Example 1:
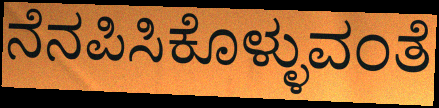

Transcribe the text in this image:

ನೆನಪಿಸಿಕೊಳ್ಳುವಂತೆ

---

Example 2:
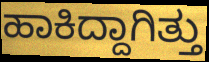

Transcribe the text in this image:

ಹಾಕಿದ್ದಾಗಿತ್ತು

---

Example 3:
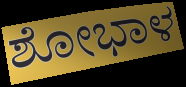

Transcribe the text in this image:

ಶೋಭಾಳ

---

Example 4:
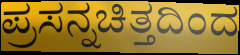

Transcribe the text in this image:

ಪ್ರಸನ್ನಚಿತ್ತದಿಂದ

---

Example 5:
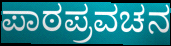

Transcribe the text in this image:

ಪಾಠಪ್ರವಚನ